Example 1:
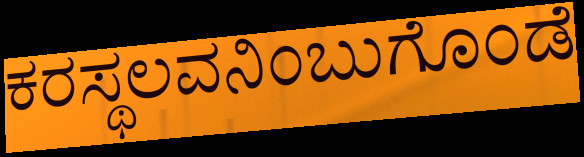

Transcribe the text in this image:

ಕರಸ್ಥಲವನಿಂಬುಗೊಂಡೆ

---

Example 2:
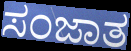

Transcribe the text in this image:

ಸಂಜಾತ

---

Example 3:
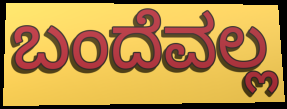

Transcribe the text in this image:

ಬಂದೆವಲ್ಲ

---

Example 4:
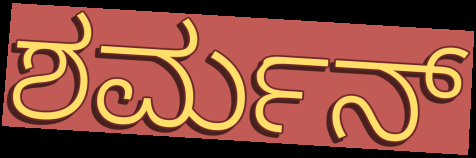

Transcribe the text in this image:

ಶರ್ಮನ್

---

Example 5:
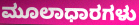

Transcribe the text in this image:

ಮೂಲಾಧಾರಗಳು